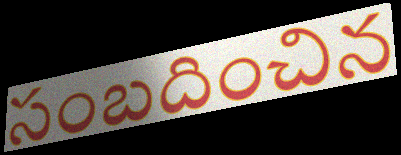
సంబదించిన